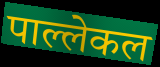
पाल्लेकल